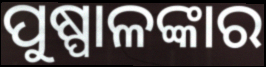
ପୁଷ୍ପାଳଙ୍କାର